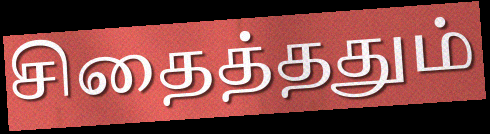
சிதைத்ததும்